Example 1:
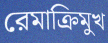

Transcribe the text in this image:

রেমাক্রিমুখ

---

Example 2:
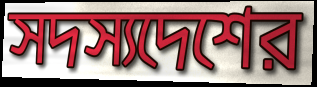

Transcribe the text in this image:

সদস্যদেশের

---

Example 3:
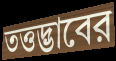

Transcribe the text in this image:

তত্তদ্ভাবের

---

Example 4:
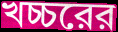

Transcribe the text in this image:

খচ্চরের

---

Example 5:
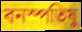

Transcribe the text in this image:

বনস্পতিষু